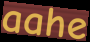
aahe